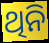
ଥିନି